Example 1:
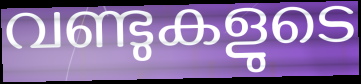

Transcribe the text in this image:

വണ്ടുകളുടെ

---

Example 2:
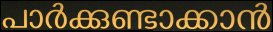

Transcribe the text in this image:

പാർക്കുണ്ടാക്കാൻ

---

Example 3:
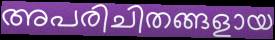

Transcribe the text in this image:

അപരിചിതങ്ങളായ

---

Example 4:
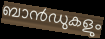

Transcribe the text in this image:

ബാൻഡുകളും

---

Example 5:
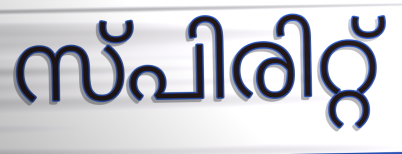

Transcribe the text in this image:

സ്പിരിറ്റ്